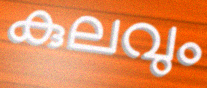
കുലവും